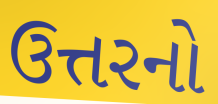
ઉત્તરનો